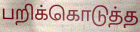
பறிக்கொடுத்த